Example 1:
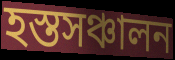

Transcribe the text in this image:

হস্তসঞ্চালন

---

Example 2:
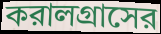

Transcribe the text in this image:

করালগ্রাসের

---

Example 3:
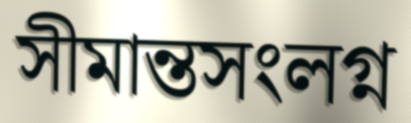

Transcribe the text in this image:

সীমান্তসংলগ্ন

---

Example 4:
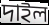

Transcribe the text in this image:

দাইল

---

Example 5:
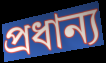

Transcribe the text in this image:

প্রধান্য